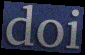
doi